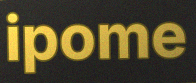
ipome